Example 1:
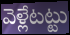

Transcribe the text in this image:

వెళ్లేటట్టు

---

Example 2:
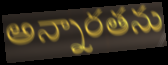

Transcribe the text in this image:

అన్నారతను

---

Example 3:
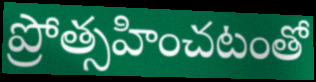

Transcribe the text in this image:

ప్రోత్సహించటంతో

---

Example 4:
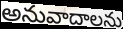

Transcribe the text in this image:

అనువాదాలను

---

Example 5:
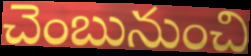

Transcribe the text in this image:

చెంబునుంచి